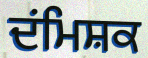
ਦਂਮਿਸ਼ਕ